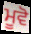
ਮੂਵੋ